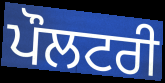
ਪੌਲਟਰੀ